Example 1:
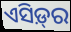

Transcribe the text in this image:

ଏସିଡ଼୍‌ର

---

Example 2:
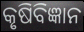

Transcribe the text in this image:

କୃଷିବିଜ୍ଞାନ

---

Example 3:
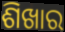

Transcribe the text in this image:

ଶିଖାର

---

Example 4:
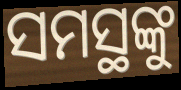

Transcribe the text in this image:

ସମସ୍ଥଙ୍କୁ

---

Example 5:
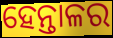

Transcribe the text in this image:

ହେନ୍ତାଳର